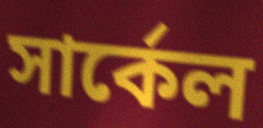
সার্কেল